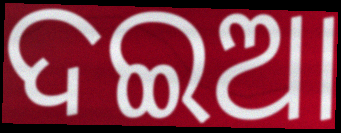
ଦଇଆ